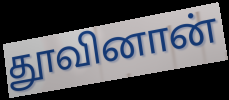
தூவினான்